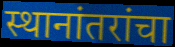
स्थानांतरांचा